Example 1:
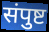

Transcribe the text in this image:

संपुष्ट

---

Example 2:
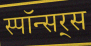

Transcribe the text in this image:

स्पॉन्सर्स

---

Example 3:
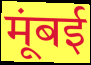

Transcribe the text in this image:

मूंबई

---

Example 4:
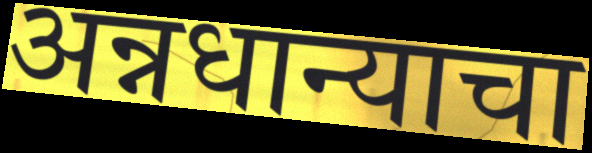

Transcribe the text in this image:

अन्नधान्याचा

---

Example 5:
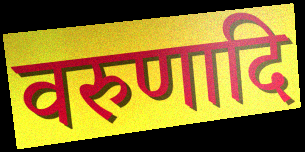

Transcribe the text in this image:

वरुणादि